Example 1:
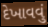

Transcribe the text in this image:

દેખાવવું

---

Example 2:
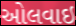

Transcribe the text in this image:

ઓલવાઇ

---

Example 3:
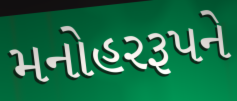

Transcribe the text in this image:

મનોહરરૂપને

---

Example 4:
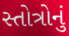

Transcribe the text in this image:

સ્તોત્રોનું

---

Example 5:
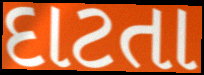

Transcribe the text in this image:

દાટતા